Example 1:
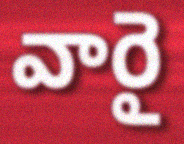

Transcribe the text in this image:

వారై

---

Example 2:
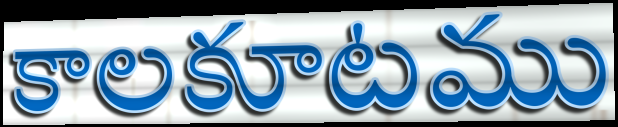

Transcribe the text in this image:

కాలకూటము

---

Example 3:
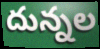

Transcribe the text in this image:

దున్నల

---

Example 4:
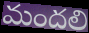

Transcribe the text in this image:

మందలి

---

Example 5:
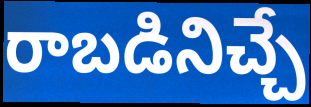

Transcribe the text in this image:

రాబడినిచ్చే